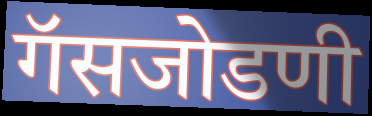
गॅसजोडणी